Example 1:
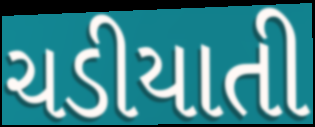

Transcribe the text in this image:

ચડીયાતી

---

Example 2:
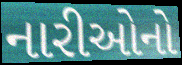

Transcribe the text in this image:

નારીઓનો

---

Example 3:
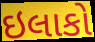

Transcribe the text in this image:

ઇલાકો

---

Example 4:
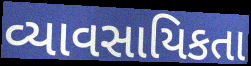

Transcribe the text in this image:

વ્યાવસાયિકતા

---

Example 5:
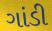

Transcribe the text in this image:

ગાંડી